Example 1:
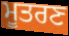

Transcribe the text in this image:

ਮੂਤਰਣ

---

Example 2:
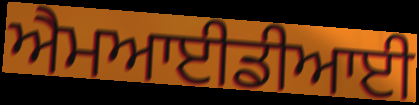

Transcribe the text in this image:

ਐਮਆਈਡੀਆਈ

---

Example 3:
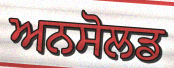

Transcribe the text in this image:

ਅਨਸੋਲਡ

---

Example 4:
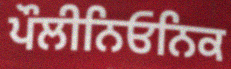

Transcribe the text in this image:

ਪੌਲੀਨਿਓਨਿਕ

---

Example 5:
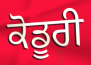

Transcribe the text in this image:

ਕੋਡੂਰੀ